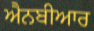
ਐਨਬੀਆਰ